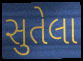
સુતેલા